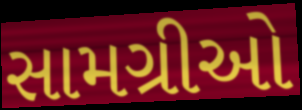
સામગ્રીઓ